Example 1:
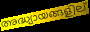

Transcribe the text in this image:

അദ്ധ്യായങ്ങളില്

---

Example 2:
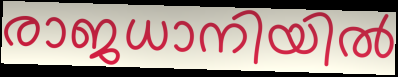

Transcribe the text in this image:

രാജധാനിയിൽ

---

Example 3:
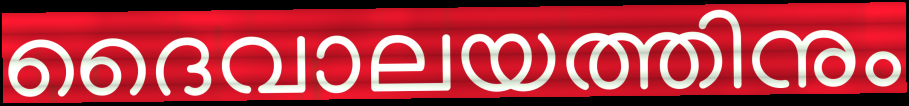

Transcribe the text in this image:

ദൈവാലയത്തിനും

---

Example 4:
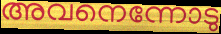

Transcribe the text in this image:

അവനെന്നോടു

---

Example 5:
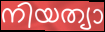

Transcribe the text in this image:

നിയത്യാ